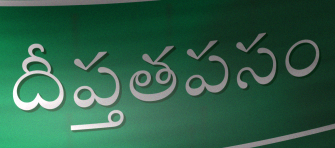
దీప్తతపసం